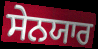
ਸੇਨਯਾਰ